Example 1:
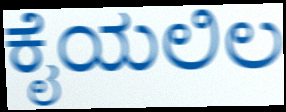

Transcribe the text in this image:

ಕೈಯಲಿಲ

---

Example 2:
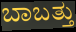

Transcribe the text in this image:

ಬಾಬತ್ತು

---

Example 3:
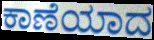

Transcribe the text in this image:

ಕಾಣೆಯಾದ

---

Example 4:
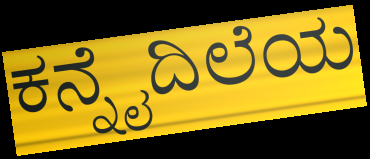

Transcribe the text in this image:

ಕನ್ನೈದಿಲೆಯ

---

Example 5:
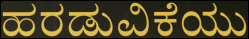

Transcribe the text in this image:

ಹರಡುವಿಕೆಯು